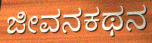
ಜೀವನಕಥನ